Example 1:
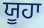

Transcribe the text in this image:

ਯੂਹਾ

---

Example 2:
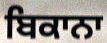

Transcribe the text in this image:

ਬਿਕਾਨਾ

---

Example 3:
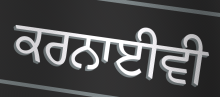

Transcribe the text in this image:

ਕਰਨਾਈਵੀ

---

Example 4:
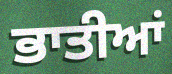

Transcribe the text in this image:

ਭਾਤੀਆਂ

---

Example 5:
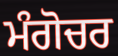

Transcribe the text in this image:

ਮੰਗੋਚਰ